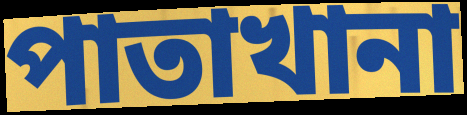
পাতাখানা